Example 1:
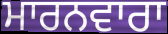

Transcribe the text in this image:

ਮਾਰਨਵਾਰਾ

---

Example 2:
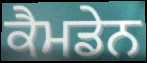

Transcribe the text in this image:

ਕੈਮਡੇਨ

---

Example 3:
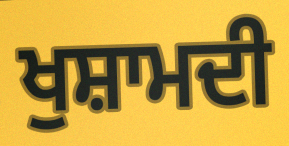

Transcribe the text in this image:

ਖੁਸ਼ਾਮਦੀ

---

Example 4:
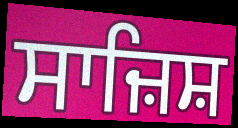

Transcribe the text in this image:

ਸਾਜ਼ਿਸ਼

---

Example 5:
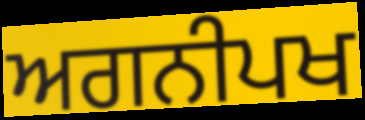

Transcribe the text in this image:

ਅਗਨੀਪਖ